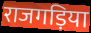
राजगड़िया